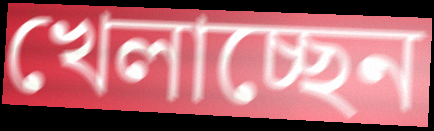
খেলাচ্ছেন